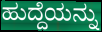
ಹುದ್ದೆಯನ್ನು